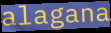
alagana